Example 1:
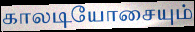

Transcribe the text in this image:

காலடியோசையும்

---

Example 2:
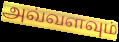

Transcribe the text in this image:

அவ்வளவும்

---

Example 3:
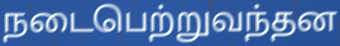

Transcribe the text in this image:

நடைபெற்றுவந்தன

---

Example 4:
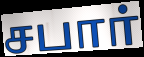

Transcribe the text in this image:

சபார்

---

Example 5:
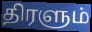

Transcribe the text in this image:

திரளும்